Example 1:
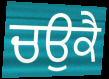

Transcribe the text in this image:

ਚਉਕੈ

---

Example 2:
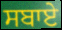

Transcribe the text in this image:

ਸਬਾਏ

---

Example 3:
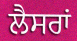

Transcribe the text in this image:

ਲੈਸਰਾਂ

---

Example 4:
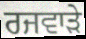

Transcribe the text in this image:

ਰਜਵਾੜੇ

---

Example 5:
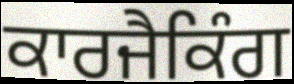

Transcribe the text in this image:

ਕਾਰਜੈਕਿੰਗ